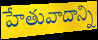
హేతువాదాన్ని